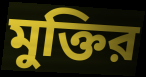
মুক্তির